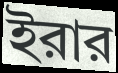
ইরার